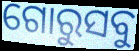
ଗୋରୁସବୁ